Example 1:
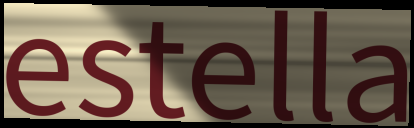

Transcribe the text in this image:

estella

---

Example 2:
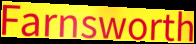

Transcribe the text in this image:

Farnsworth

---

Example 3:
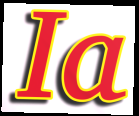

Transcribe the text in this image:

Ia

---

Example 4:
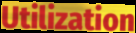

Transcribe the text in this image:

Utilization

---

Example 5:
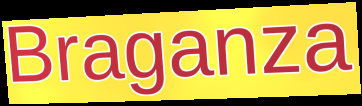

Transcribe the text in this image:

Braganza